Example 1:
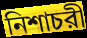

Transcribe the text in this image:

নিশাচরী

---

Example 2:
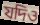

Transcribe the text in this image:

যদিও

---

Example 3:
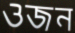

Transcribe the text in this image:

ওজন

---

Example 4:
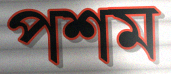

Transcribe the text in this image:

পশম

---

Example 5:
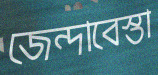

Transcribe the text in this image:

জেন্দাবেস্তা